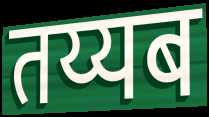
तय्यब